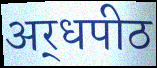
अर्धपीठ